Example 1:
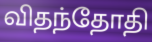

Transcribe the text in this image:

விதந்தோதி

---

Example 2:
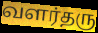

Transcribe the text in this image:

வளர்தரு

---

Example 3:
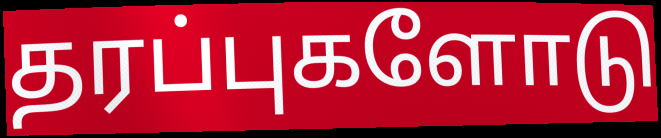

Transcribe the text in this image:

தரப்புகளோடு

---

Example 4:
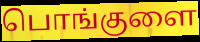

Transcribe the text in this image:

பொங்குளை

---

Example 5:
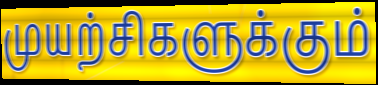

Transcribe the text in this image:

முயற்சிகளுக்கும்